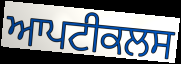
ਆਪਟੀਕਲਸ